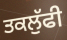
ਤਕਲੁੱਫੀ